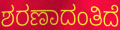
ಶರಣಾದಂತಿದೆ